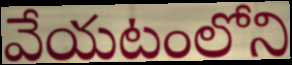
వేయటంలోని